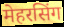
मेहरसिंग